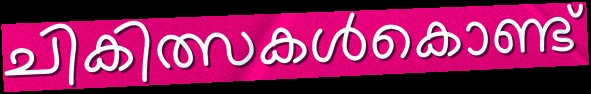
ചികിത്സകൾകൊണ്ട്